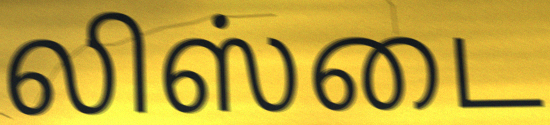
லிஸ்டை